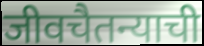
जीवचैतन्याची